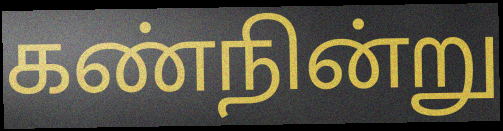
கண்நின்று